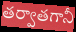
తర్వాతగానీ